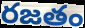
రజతం